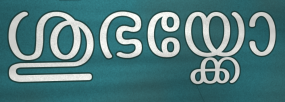
ശുഭയ്ക്കോ